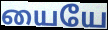
யையே